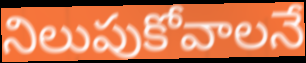
నిలుపుకోవాలనే